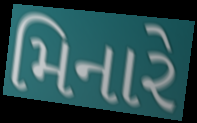
મિનારે